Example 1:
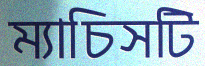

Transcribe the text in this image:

ম্যাচিসটি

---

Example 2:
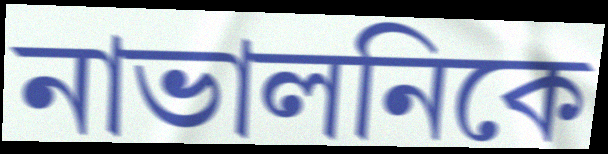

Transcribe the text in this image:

নাভালনিকে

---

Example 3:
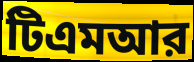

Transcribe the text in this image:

টিএমআর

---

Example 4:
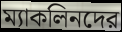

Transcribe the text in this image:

ম্যাকলিনদের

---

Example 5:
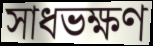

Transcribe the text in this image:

সাধভক্ষণ